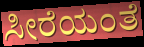
ಸೀರೆಯಂತೆ